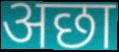
अछा